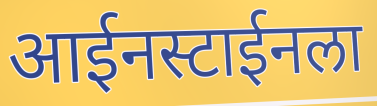
आईनस्टाईनला